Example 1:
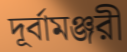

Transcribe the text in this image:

দূর্বামঞ্জরী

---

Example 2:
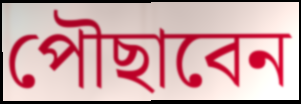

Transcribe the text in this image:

পৌছাবেন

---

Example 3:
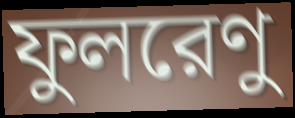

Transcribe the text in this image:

ফুলরেণু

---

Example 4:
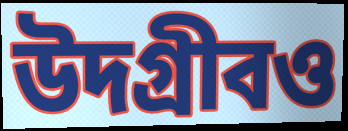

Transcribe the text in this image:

উদগ্রীবও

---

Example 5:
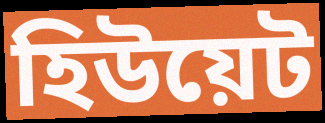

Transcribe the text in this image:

হিউয়েট